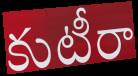
కుటీరా